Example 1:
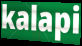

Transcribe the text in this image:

kalapi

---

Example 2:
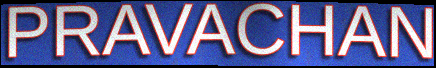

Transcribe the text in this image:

PRAVACHAN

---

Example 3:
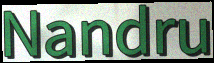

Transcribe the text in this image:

Nandru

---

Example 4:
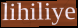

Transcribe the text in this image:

lihiliye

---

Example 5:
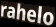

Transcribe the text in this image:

rahelo